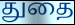
துதை